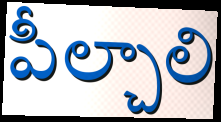
పీల్చాలి